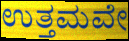
ಉತ್ತಮವೇ